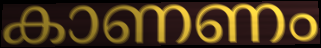
കാണണം